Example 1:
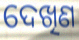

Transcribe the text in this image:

ଦେଖିଣ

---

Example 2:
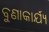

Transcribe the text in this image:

ବୁଣାକାର୍ଯ୍ୟ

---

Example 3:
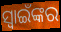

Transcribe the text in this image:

ସ୍ୱାଇଁଙ୍କର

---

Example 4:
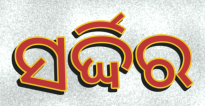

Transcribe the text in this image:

ସର୍ଦ୍ଦିର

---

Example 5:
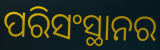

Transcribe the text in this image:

ପରିସଂସ୍ଥାନର